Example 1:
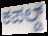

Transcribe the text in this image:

ಕಪಲ್ಡ್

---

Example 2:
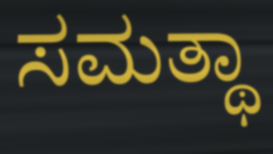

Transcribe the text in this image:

ಸಮತ್ಥಾ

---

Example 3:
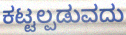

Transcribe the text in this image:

ಕಟ್ಟಲ್ಪಡುವದು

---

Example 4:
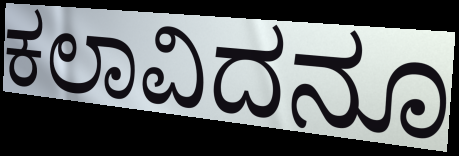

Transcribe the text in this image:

ಕಲಾವಿದನೂ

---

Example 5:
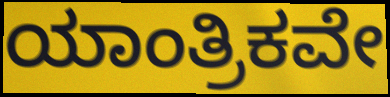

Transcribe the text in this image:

ಯಾಂತ್ರಿಕವೇ